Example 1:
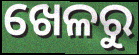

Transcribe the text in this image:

ଖେଳରୁ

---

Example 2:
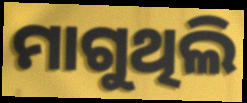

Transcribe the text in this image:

ମାଗୁଥିଲି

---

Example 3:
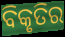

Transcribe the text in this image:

ବିକୃତିର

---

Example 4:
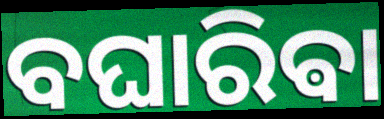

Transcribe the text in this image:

ବଘାରିଵା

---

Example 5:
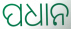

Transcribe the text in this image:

ପଧାନ